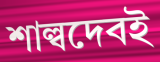
শাল্বদেবই